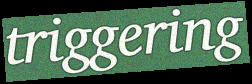
triggering